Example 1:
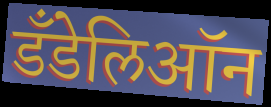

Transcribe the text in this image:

डँडेलिऑन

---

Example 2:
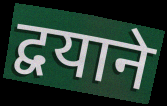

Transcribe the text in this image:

द्वयाने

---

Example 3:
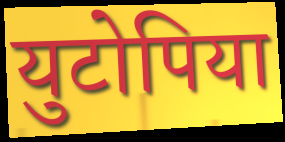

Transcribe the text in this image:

युटोपिया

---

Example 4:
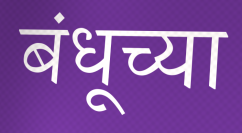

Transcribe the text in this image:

बंधूच्या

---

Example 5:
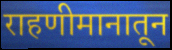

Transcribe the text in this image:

राहणीमानातून